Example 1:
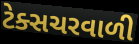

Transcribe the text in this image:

ટેક્સચરવાળી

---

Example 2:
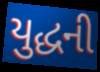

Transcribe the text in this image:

યુદ્ધની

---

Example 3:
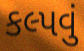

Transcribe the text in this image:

કલ્પવું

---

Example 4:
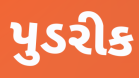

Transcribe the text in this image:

પુડરીક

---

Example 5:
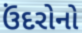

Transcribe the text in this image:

ઉંદરોનો